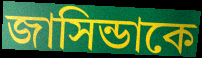
জাসিন্ডাকে